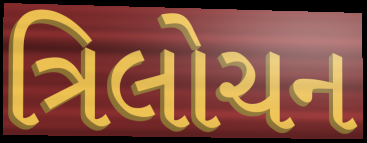
ત્રિલોચન